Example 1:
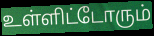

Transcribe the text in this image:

உள்ளிட்டோரும்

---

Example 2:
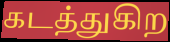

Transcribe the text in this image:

கடத்துகிற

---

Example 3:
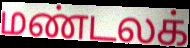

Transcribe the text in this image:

மண்டலக்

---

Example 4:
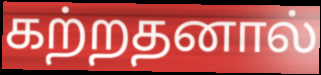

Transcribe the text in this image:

கற்றதனால்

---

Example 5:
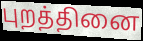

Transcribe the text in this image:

புறத்தினை